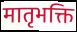
मातृभक्ति